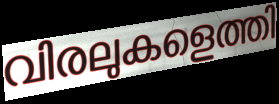
വിരലുകളെത്തി